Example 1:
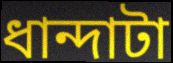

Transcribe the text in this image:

ধান্দাটা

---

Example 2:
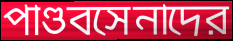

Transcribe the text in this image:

পাণ্ডবসেনাদের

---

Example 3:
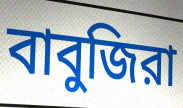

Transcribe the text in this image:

বাবুজিরা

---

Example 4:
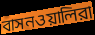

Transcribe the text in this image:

বাসনওয়ালিরা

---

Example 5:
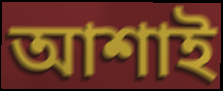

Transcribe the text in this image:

আশাই